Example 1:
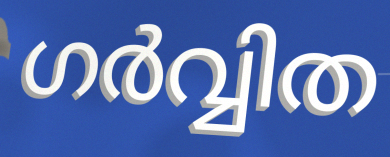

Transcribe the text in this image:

ഗർവ്വിത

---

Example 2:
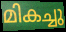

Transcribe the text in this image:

മികച്ചു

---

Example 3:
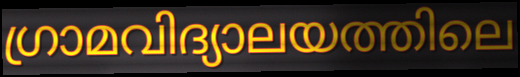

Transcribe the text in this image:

ഗ്രാമവിദ്യാലയത്തിലെ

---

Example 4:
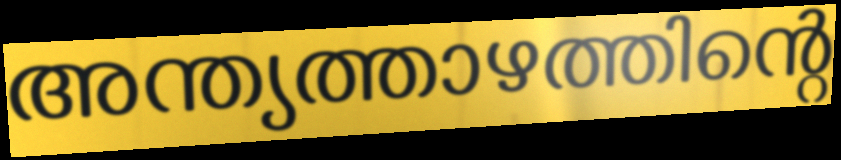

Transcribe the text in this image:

അന്ത്യത്താഴത്തിന്റെ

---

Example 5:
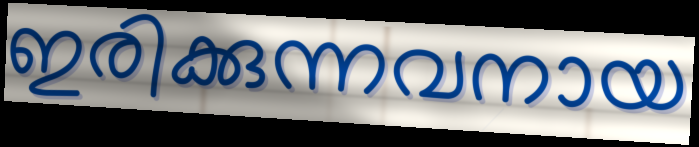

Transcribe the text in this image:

ഇരിക്കുന്നവനായ